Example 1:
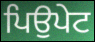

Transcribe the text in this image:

ਪਿਉਪੇਟ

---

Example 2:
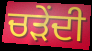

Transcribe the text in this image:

ਚੜੇਂਦੀ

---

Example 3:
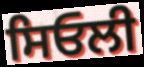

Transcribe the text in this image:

ਸਿਓਲੀ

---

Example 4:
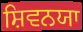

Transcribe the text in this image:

ਸ਼ਿਵਨਯਾ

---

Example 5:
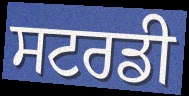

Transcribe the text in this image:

ਸਟਰਡੀ